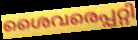
ശൈവരെപ്പറ്റി